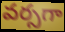
వర్సగా